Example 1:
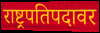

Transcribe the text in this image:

राष्ट्रपतिपदावर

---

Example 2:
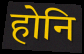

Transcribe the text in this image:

होनि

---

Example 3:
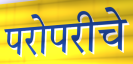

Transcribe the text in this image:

परोपरीचे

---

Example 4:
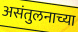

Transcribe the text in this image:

असंतुलनाच्या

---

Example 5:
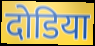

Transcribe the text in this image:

दोडिया